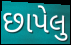
છાપેલુ